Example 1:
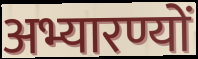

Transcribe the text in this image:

अभ्यारण्यों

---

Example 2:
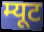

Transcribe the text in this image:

म्यूट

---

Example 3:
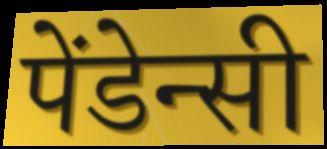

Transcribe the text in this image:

पेंडेन्सी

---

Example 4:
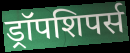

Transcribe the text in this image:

ड्रॉपशिपर्स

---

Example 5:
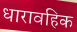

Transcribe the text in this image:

धारावहिक